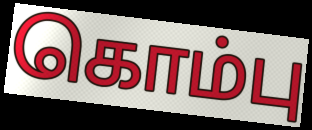
கொம்பு